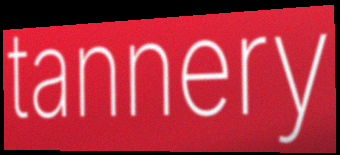
tannery